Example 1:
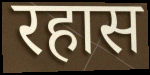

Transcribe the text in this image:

रहास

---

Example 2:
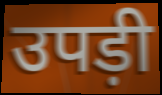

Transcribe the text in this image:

उपड़ी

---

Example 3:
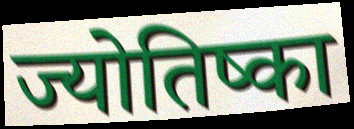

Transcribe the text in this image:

ज्योतिष्का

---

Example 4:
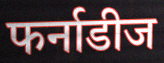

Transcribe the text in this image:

फर्नाडीज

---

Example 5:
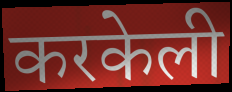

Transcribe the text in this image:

करकेली